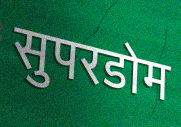
सुपरडोम